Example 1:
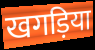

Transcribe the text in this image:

खगड़िया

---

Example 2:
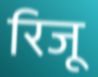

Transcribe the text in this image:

रिजू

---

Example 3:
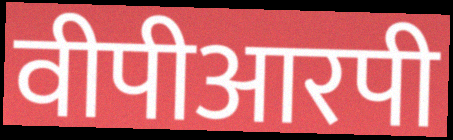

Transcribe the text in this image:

वीपीआरपी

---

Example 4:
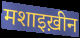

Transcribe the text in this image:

मशाइख़ीन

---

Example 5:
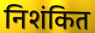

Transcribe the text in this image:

निशंकित